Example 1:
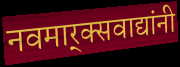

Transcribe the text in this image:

नवमार्क्सवाद्यांनी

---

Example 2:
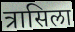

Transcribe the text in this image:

त्रासिला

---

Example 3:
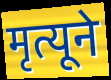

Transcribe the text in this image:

मृत्यूने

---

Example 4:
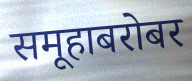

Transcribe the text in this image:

समूहाबरोबर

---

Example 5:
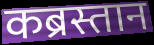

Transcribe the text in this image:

कब्रस्तान